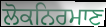
ਲੋਕਨਿਰਮਾਣ